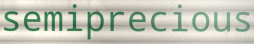
semiprecious